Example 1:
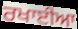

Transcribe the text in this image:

ਰਖਾਈਆ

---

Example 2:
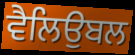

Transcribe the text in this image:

ਵੈਲਿਉਬਲ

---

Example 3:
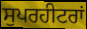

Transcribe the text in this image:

ਸੁਪਰਹੀਟਰਾਂ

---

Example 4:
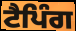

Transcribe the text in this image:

ਟੈਪਿੰਗ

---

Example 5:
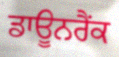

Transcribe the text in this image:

ਡਾਊਨਰੈਂਕ